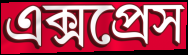
এক্সপ্রেস